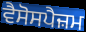
ਵੈਸੋਸਪੈਜ਼ਮ